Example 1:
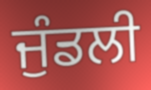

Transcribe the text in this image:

ਜੁੰਡਲੀ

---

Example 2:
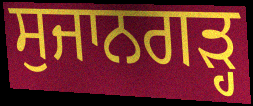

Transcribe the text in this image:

ਸੁਜਾਨਗੜ੍ਹ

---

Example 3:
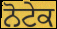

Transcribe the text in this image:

ਨੋਟੇਕ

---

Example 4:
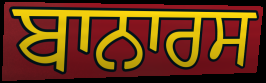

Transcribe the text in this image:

ਬਾਨਾਰਸ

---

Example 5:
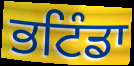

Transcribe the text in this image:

ਭਟਿੰਡਾ